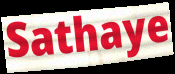
Sathaye